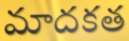
మాదకత